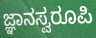
ಜ್ಞಾನಸ್ವರೂಪಿ